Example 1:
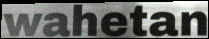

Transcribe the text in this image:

wahetan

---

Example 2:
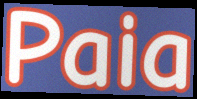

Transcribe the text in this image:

Paia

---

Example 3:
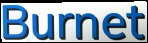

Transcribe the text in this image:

Burnet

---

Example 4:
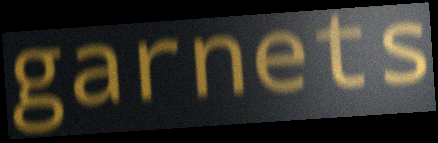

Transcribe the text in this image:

garnets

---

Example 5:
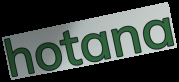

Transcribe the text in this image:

hotana